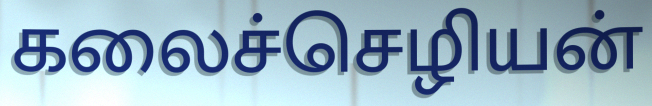
கலைச்செழியன்